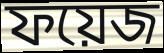
ফয়েজ